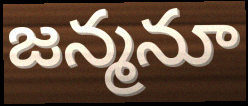
జన్మనూ